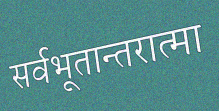
सर्वभूतान्तरात्मा